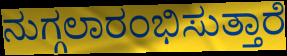
ನುಗ್ಗಲಾರಂಭಿಸುತ್ತಾರೆ